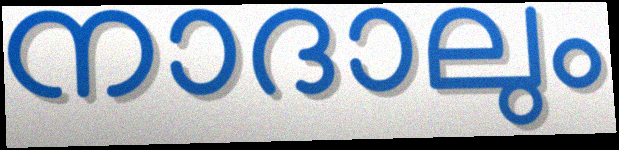
നാദാലും